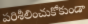
పరిశీలించుకోకుండా